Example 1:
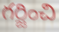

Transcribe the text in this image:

గర్జించి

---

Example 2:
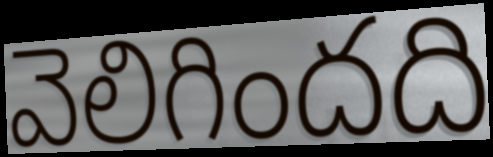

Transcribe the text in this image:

వెలిగిందది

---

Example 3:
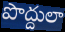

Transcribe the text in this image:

పొద్దులా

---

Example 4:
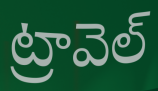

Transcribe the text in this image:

ట్రావెల్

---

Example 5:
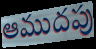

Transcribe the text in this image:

ఆముదపు